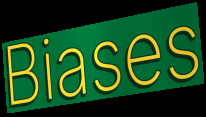
Biases